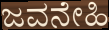
ಜವನೇಹಿ